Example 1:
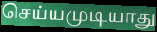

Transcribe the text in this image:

செய்யமுடியாது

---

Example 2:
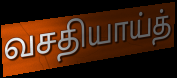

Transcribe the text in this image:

வசதியாய்த்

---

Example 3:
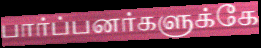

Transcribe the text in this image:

பார்ப்பனர்களுக்கே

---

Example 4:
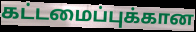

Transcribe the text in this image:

கட்டமைப்புக்கான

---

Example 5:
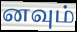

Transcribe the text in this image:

னவும்